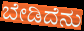
ಬೇಡಿದೆನು